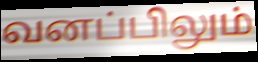
வனப்பிலும்